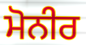
ਮੋਨੀਰ